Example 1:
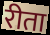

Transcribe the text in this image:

रीता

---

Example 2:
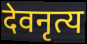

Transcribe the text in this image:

देवनृत्य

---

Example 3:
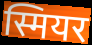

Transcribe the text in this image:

स्मियर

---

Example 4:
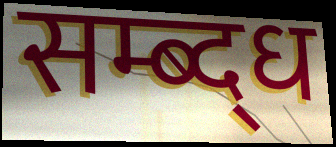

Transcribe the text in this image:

सम्ब्द्ध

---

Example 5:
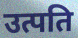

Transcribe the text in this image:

उत्पति